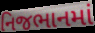
નિજભાનમાં